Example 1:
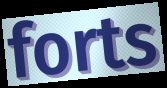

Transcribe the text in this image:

forts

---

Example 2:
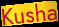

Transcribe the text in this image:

Kusha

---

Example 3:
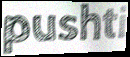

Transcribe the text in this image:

pushti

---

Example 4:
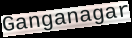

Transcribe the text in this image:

Ganganagar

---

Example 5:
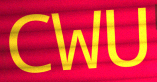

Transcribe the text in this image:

CWU